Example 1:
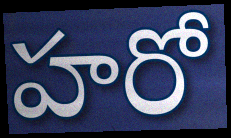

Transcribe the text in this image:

హరో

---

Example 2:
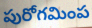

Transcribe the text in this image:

పురోగమింప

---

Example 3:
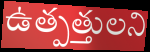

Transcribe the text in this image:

ఉత్పత్తులని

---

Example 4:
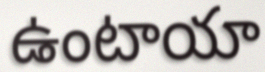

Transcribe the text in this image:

ఉంటాయా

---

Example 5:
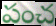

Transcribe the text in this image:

పంచ